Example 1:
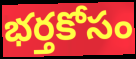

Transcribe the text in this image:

భర్తకోసం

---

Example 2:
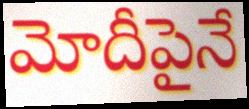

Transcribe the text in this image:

మోదీపైనే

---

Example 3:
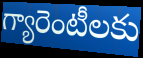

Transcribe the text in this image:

గ్యారెంటీలకు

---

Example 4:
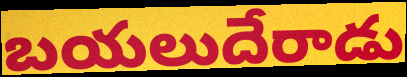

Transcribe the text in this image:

బయలుదేరాడు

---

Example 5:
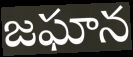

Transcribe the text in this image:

జఘాన